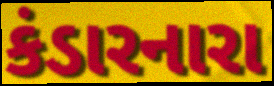
કંડારનારા